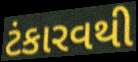
ટંકારવથી